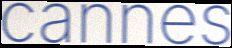
cannes